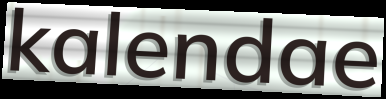
kalendae